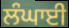
ਲੰਘਾਈ